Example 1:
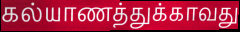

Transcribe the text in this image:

கல்யாணத்துக்காவது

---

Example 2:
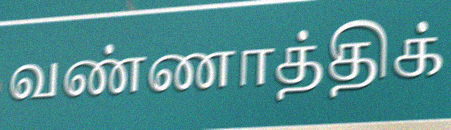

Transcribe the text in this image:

வண்ணாத்திக்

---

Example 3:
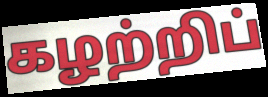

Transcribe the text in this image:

கழற்றிப்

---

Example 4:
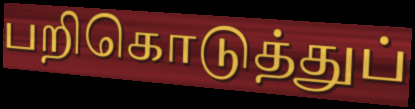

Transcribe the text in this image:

பறிகொடுத்துப்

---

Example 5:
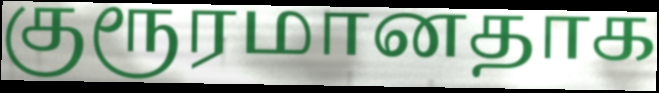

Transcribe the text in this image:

குரூரமானதாக